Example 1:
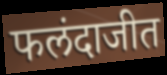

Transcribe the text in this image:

फलंदाजीत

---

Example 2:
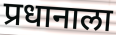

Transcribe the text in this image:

प्रधानाला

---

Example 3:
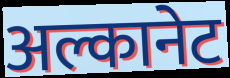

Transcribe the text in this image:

अल्कानेट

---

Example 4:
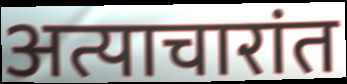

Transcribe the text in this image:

अत्याचारांत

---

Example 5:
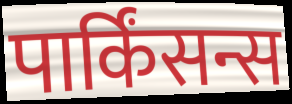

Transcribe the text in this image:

पार्किंसन्स